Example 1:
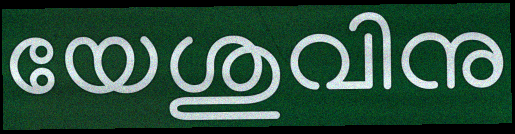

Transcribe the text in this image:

യേശുവിനു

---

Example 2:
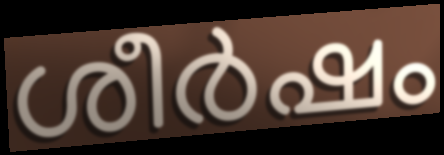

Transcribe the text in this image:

ശീർഷം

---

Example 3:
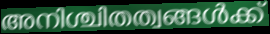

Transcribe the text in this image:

അനിശ്ചിതത്വങ്ങൾക്ക്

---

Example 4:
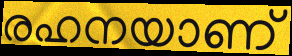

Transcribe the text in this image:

രഹനയാണ്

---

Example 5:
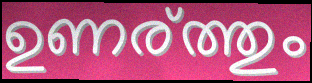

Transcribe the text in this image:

ഉണര്ത്തും